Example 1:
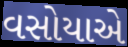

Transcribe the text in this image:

વસોયાએ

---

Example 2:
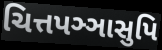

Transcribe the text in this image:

ચિત્તપઞ્ઞાસુપિ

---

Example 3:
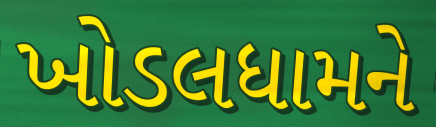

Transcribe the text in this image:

ખોડલધામને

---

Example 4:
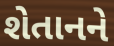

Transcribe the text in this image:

શેતાનને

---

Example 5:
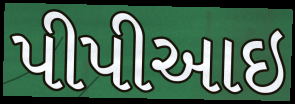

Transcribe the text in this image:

પીપીઆઇ